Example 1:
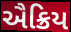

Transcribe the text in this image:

ઐક્રિય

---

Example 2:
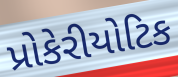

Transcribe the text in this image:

પ્રોકેરીયોટિક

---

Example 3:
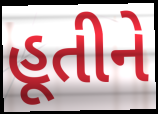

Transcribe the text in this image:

હૂતીને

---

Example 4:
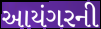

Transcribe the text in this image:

આયંગરની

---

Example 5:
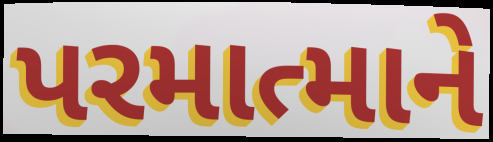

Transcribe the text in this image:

પરમાત્માને